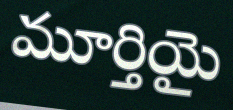
మూర్తియై